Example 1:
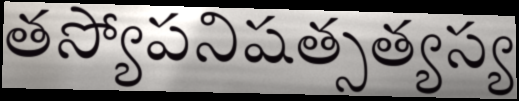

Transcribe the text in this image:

తస్యోపనిషత్సత్యస్య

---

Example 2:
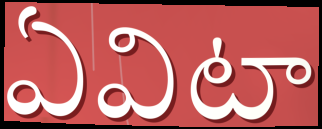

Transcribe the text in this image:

ఏవిటా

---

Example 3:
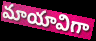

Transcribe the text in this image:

మాయావిగా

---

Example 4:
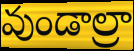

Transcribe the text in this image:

వుండాల్రా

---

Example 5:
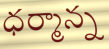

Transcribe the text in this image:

ధర్మాన్న